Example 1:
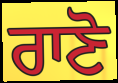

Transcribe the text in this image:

ਰਾਣੋ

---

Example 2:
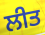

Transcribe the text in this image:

ਲੀਤ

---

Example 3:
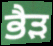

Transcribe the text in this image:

ਭੈੜ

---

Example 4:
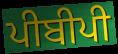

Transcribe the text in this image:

ਪੀਬੀਪੀ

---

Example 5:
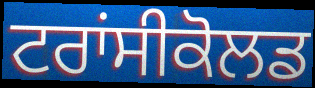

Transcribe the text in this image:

ਟਰਾਂਸੀਕੋਲਡ